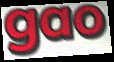
gao